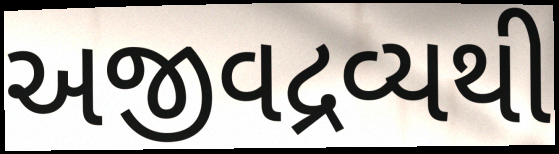
અજીવદ્રવ્યથી